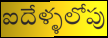
ఐదేళ్ళలోపు